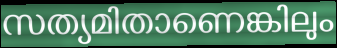
സത്യമിതാണെങ്കിലും